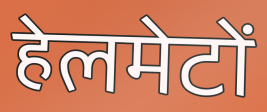
हेलमेटों